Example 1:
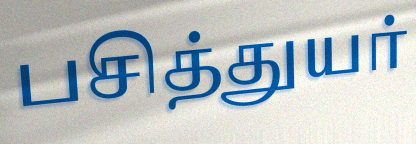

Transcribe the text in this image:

பசித்துயர்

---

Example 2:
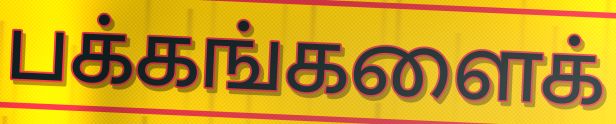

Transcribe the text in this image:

பக்கங்களைக்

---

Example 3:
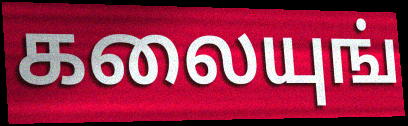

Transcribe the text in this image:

கலையுங்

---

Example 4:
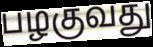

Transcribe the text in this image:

பழகுவது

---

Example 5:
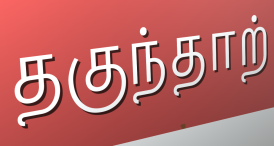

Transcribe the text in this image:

தகுந்தாற்